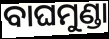
ବାଘମୁଣ୍ଡା